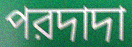
পরদাদা